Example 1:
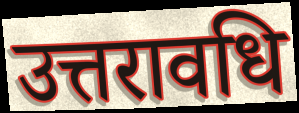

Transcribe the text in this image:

उत्तरावधि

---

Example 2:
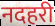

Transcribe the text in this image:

नदहरी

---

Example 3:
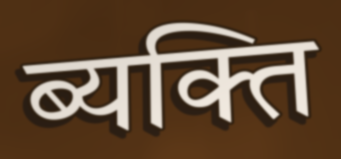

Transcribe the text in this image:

ब्यक्ति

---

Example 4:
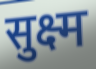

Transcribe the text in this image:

सुक्ष्म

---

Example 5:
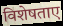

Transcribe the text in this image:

विशेषताए